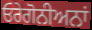
ਓਰੇਗੋਨੀਅਨਾਂ